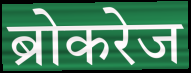
ब्रोकरेज